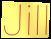
Jill